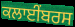
ਕਲਾਈਂਬਰਸ